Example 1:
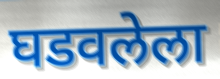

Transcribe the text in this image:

घडवलेला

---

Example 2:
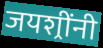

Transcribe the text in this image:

जयश्रींनी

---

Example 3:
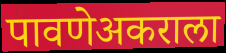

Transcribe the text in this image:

पावणेअकराला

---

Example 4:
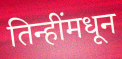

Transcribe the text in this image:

तिन्हींमधून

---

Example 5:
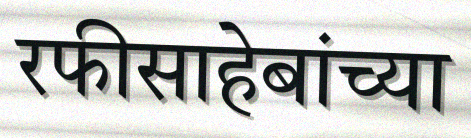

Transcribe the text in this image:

रफीसाहेबांच्या